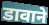
डावाने